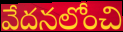
వేదనలోంచి